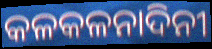
କଳକଳନାଦିନୀ